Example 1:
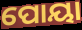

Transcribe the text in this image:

ପୋୟା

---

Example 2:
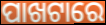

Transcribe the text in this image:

ପାଖଟାରେ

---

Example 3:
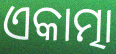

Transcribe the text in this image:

ଏକାତ୍ମା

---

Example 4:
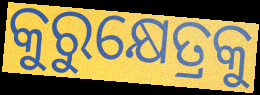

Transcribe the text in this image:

କୁରୁକ୍ଷେତ୍ରକୁ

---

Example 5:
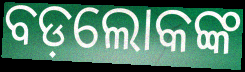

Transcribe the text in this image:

ବଡ଼ଲୋକଙ୍କ